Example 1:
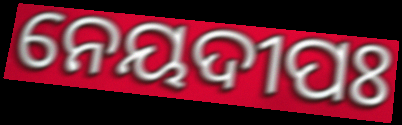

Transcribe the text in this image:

ନେୟଦୀପଃ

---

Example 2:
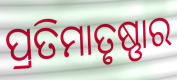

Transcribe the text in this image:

ପ୍ରତିମାତୃଷ୍ଣାର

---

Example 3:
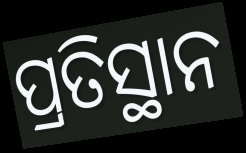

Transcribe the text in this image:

ପ୍ରତିସ୍ଥାନ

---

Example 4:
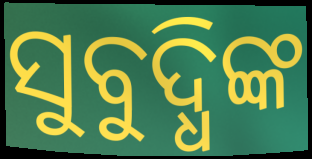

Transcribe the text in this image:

ସୁବୁଦ୍ଧିଙ୍କ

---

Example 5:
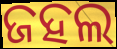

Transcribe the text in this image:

ଜହଲ